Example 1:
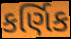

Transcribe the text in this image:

કર્ણિક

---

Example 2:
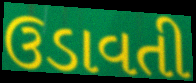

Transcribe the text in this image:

ઉડાવતી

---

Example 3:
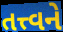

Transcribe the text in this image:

તત્ત્વને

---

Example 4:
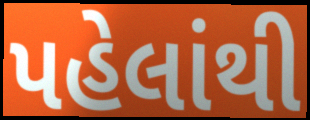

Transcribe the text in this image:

પહેલાંથી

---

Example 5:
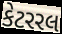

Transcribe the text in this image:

કેટરરલ